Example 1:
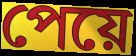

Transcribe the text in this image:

পেয়ে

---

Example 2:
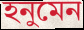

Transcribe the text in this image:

হনুমেন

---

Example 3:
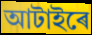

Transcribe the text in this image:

আটাইৰে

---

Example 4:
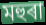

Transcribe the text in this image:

মহুৰা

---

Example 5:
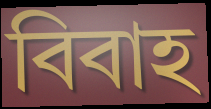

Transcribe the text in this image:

বিবাহ